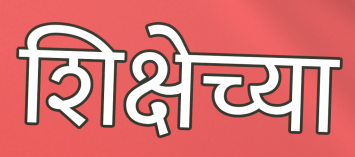
शिक्षेच्या